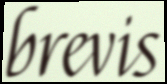
brevis